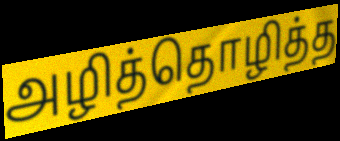
அழித்தொழித்த